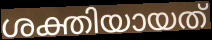
ശക്തിയായത്